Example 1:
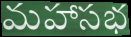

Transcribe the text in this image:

మహాసభ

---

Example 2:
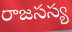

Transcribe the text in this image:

రాజసస్య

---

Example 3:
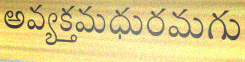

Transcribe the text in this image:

అవ్యక్తమధురమగు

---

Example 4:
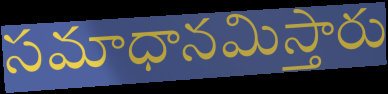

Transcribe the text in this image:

సమాధానమిస్తారు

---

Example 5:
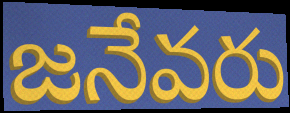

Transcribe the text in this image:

జనేవరు